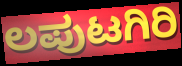
ಲಪುಟಗಿರಿ